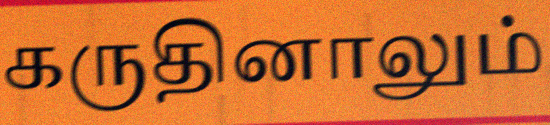
கருதினாலும்